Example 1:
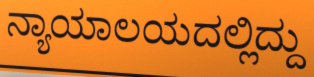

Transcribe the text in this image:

ನ್ಯಾಯಾಲಯದಲ್ಲಿದ್ದು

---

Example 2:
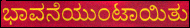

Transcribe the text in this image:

ಭಾವನೆಯುಂಟಾಯಿತು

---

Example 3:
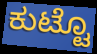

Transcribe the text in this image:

ಕುಟ್ಟೊ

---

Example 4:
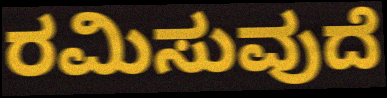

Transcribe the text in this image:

ರಮಿಸುವುದೆ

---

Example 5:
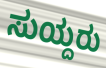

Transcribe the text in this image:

ಸುಯ್ದರು